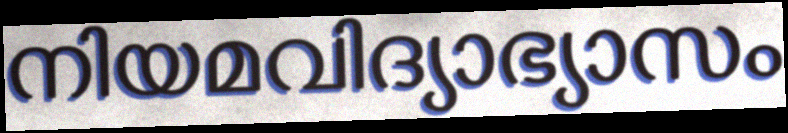
നിയമവിദ്യാഭ്യാസം